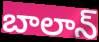
బాలాన్